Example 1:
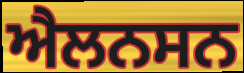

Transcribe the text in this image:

ਐਲਨਸਨ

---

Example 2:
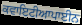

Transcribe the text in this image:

ਕਵਾਇਟੀਆਪਾਈਨ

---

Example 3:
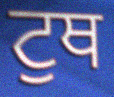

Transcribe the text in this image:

ਟੁਥ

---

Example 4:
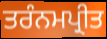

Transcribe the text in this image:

ਤਰੰਨਮਪ੍ਰੀਤ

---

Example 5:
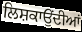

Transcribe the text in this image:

ਲਿਸ਼ਕਾਉਂਦੀਆਂ